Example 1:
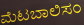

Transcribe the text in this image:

ಮೆಟಬಾಲಿಸಂ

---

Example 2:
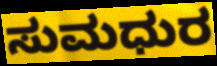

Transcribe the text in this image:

ಸುಮಧುರ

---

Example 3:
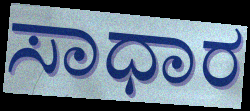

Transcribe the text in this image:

ಸಾಧಾರ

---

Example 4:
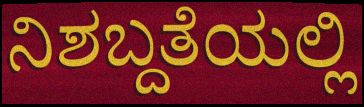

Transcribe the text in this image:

ನಿಶಬ್ದತೆಯಲ್ಲಿ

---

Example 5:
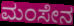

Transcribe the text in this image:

ಮಂಸೇನ